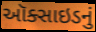
ઑક્સાઇડનું